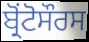
ਬ੍ਰੋਂਟੋਸੌਰਸ